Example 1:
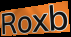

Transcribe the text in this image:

Roxb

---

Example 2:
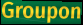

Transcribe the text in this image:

Groupon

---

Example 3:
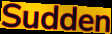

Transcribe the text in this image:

Sudden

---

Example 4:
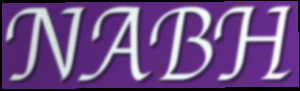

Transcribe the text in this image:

NABH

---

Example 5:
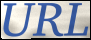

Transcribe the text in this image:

URL